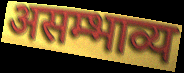
असम्भाव्य